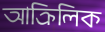
আক্ৰিলিক